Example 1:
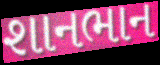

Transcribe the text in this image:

શાનભાન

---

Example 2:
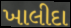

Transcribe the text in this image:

ખાલીદા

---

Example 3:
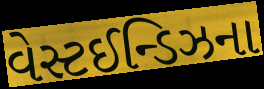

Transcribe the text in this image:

વેસ્ટઈન્ડિઝના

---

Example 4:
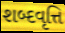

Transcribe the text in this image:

શબ્દવૃત્તિ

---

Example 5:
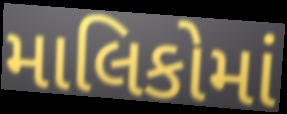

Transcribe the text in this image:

માલિકોમાં